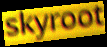
skyroot